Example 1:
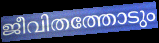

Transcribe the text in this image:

ജീവിതത്തോടും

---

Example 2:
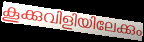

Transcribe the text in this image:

കൂക്കുവിളിയിലേക്കും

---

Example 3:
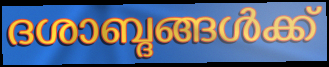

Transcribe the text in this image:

ദശാബ്ദങ്ങൾക്ക്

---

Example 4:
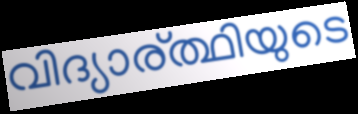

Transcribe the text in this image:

വിദ്യാര്ത്ഥിയുടെ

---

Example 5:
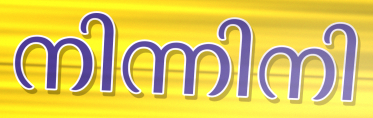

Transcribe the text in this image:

നിന്നിനി